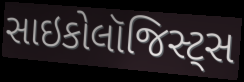
સાઇકોલૉજિસ્ટ્સ